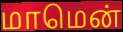
மாமென்